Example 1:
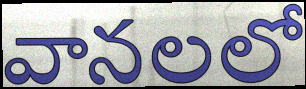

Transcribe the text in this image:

వానలలో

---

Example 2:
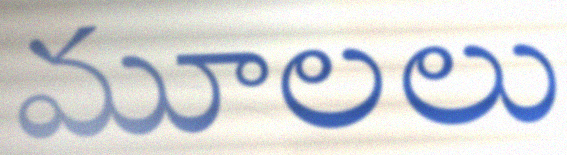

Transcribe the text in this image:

మూలలు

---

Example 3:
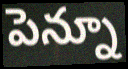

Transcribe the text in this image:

పెన్నూ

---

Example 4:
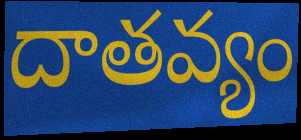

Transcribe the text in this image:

దాతవ్యం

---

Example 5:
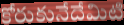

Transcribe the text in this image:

కోరుకునేదేమిటి